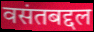
वसंतबद्दल